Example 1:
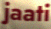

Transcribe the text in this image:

jaati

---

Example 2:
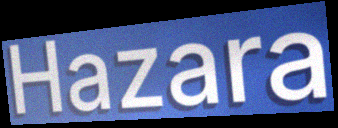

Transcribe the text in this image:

Hazara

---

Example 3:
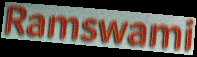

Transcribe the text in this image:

Ramswami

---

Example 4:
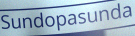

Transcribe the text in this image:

Sundopasunda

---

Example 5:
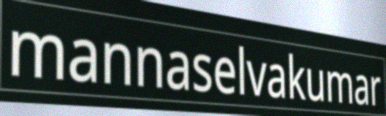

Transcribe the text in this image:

mannaselvakumar